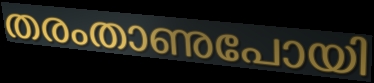
തരംതാണുപോയി